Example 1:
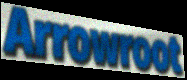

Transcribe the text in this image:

Arrowroot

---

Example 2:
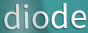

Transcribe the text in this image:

diode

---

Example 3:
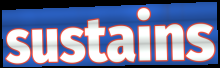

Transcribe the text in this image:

sustains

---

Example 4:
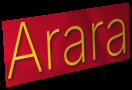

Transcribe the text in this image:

Arara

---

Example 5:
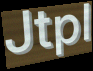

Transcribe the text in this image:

Jtpl